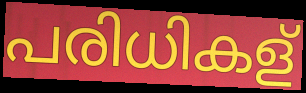
പരിധികള്